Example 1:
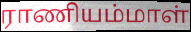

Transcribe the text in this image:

ராணியம்மாள்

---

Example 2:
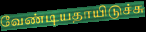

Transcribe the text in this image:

வேண்டியதாயிடுச்சு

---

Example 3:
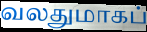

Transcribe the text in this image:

வலதுமாகப்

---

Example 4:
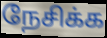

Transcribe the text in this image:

நேசிக்க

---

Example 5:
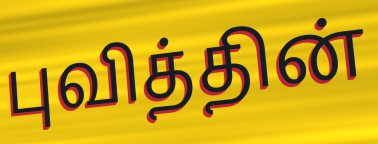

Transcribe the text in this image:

புவித்தின்